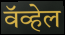
वॅव्हेल